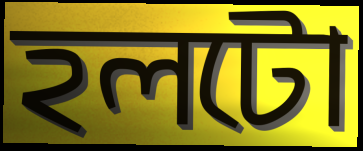
হলটো